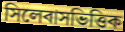
সিলেবাসভিত্তিক